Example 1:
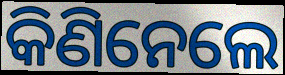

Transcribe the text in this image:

କିଣିନେଲେ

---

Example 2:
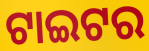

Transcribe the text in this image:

ଟାଇଟର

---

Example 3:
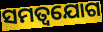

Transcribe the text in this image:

ସମତ୍ୱଯୋଗ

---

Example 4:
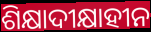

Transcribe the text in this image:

ଶିକ୍ଷାଦୀକ୍ଷାହୀନ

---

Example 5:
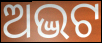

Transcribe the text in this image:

ଅଦ୍ଭଟ